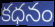
కధనం